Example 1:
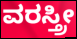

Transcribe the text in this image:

ವರಸ್ತ್ರೀ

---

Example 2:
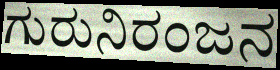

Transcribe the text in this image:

ಗುರುನಿರಂಜನ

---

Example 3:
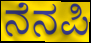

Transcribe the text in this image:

ನೆನಪಿ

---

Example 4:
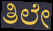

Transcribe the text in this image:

ತಿಲೇ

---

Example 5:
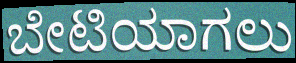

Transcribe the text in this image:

ಬೇಟಿಯಾಗಲು